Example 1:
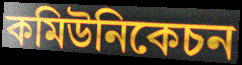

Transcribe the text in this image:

কমিউনিকেচন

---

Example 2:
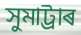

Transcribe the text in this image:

সুমাট্ৰাৰ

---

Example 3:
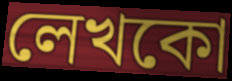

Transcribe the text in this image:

লেখকো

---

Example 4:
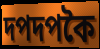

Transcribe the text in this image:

দপদপকৈ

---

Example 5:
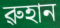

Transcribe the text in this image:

ৱুহান